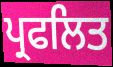
ਪ੍ਰਫਲਿਤ